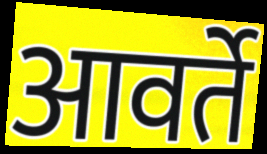
आवर्ते